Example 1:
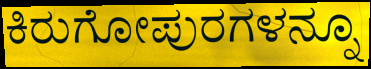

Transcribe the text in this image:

ಕಿರುಗೋಪುರಗಳನ್ನೂ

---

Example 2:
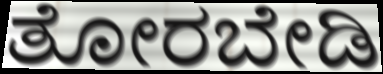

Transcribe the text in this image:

ತೋರಬೇಡಿ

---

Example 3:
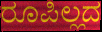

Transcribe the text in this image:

ರೂಪಿಲ್ಲದ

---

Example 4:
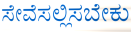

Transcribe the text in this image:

ಸೇವೆಸಲ್ಲಿಸಬೇಕು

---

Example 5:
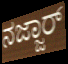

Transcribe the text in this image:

ನಜ್ಜಾರ್